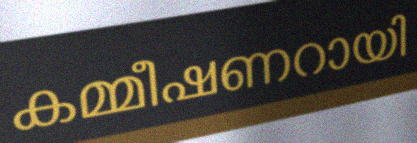
കമ്മീഷണറായി